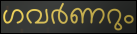
ഗവർണറും